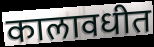
कालावधीत